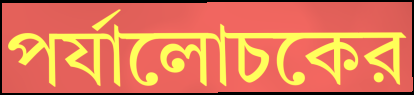
পর্যালোচকের